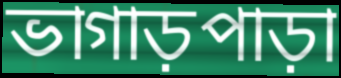
ভাগাড়পাড়া